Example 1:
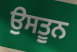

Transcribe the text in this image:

ਉਸਤੂਨ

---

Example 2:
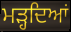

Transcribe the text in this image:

ਮੜ੍ਹਦਿਆਂ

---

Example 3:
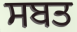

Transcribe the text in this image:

ਸਬਤ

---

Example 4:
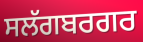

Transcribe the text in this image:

ਸਲੱਗਬਰਗਰ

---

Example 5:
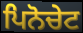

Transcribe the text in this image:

ਪਿਨੋਚੇਟ